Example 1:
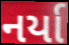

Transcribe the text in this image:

નર્યા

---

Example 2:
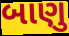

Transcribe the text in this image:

બાણુ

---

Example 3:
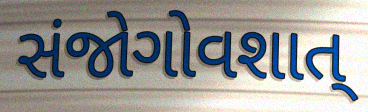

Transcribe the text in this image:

સંજોગોવશાત્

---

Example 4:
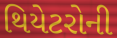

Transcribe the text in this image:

થિયેટરોની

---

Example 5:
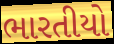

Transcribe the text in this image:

ભારતીયો